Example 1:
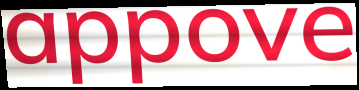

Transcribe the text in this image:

appove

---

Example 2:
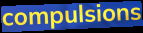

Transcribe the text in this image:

compulsions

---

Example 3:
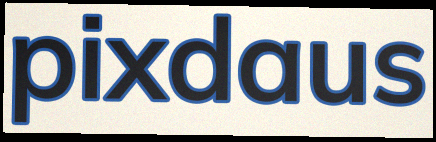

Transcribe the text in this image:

pixdaus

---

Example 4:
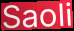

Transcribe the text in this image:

Saoli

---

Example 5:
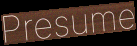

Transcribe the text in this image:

Presume